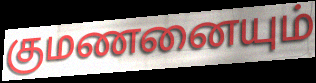
குமணனையும்